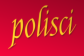
polisci